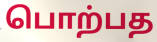
பொற்பத